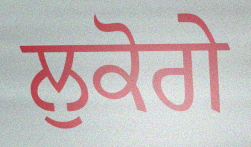
ਲੁਕੋਗੇ